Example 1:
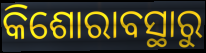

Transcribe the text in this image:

କିଶୋରାବସ୍ଥାରୁ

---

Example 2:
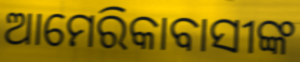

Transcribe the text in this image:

ଆମେରିକାବାସୀଙ୍କ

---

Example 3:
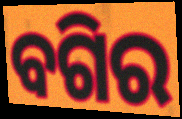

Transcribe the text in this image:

ବଗିର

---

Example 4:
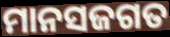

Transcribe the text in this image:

ମାନସଜଗତ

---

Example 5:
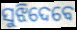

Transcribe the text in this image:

ସୁଝିଦେବେ